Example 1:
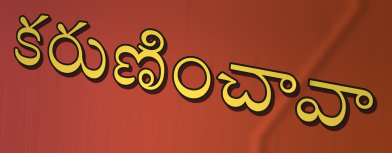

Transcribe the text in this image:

కరుణించావా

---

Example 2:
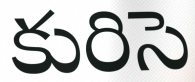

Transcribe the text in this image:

కురిసె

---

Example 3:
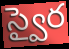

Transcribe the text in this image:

స్వైర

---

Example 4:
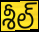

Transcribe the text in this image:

శీల్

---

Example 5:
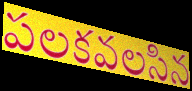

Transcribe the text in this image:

పలకవలసిన